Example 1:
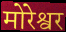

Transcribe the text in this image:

मोरेश्वर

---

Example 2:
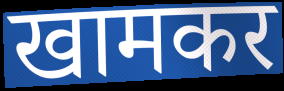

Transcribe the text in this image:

खामकर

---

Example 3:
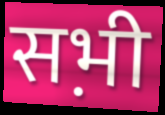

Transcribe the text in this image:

सभ़ी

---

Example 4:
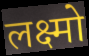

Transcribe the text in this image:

लक्ष्मो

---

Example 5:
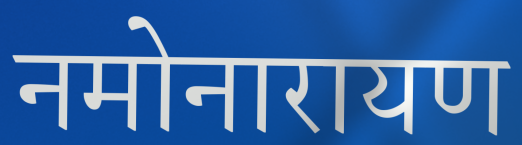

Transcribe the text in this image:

नमोनारायण